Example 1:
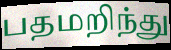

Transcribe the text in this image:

பதமறிந்து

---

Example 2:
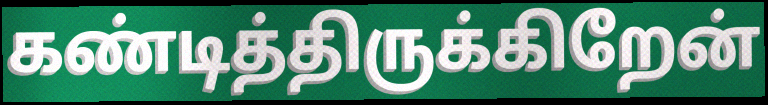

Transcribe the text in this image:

கண்டித்திருக்கிறேன்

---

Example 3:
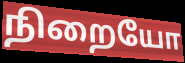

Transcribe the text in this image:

நிறையோ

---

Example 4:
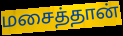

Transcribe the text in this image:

மசைத்தான்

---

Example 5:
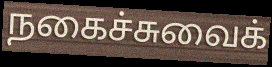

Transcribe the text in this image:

நகைச்சுவைக்